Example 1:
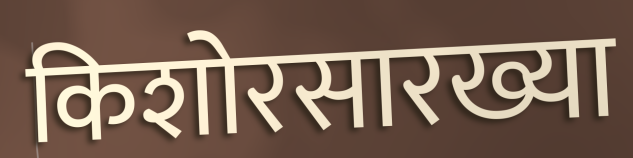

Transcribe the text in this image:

किशोरसारख्या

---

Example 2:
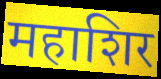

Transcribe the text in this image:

महाशिर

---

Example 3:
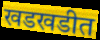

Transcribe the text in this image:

खडखडीत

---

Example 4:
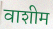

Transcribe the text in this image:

वाशीम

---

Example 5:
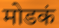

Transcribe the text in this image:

मोडकं